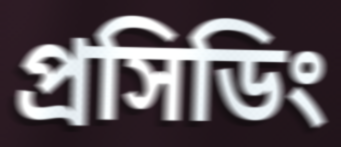
প্রসিডিং